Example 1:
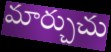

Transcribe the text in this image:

మార్చుచు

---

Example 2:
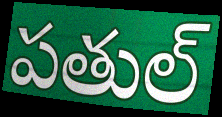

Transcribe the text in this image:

పతుల్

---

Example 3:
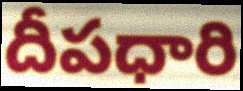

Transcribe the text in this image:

దీపధారి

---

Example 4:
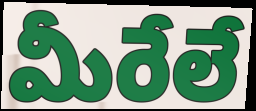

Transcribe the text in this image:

మీరేలే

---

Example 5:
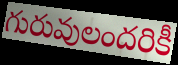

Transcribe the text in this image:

గురువులందరికీ